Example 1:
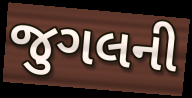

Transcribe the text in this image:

જુગલની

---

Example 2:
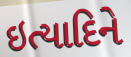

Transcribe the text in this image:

ઇત્‍યાદિને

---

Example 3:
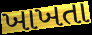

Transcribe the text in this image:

ખાખતા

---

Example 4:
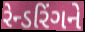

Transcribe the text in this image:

રેન્ડરિંગને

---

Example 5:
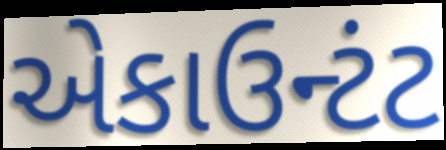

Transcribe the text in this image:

એકાઉન્ટંટ